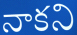
నాకని